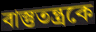
বাস্তুতন্ত্রকে